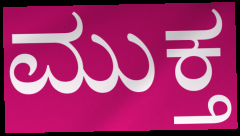
ಮುಕ್ತ